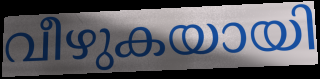
വീഴുകയായി